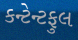
કન્ટેન્ટફુલ